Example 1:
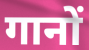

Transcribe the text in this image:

गानों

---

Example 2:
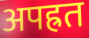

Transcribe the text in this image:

अपह्रत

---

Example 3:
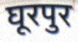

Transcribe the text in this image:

घूरपुर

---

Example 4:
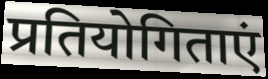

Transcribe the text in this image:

प्रतियोगिताएं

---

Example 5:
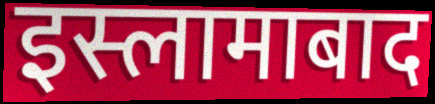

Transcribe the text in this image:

इस्लामाबाद